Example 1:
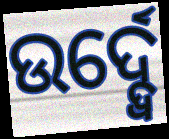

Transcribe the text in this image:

ଉର୍ଦ୍ଦ୍ୱେ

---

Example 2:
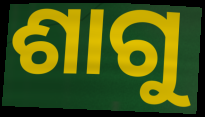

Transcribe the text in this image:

ଶାଗୁ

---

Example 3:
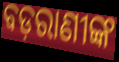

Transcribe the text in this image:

ବଡ଼ରାଣୀଙ୍କ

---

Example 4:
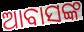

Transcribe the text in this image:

ଆବାସଙ୍କ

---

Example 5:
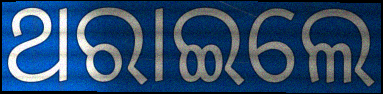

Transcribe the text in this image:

ଥରାଇଲେ